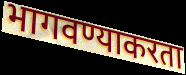
भागवण्याकरता